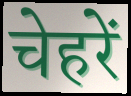
चेहरें